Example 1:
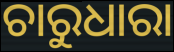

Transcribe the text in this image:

ଚାରୁଧାରା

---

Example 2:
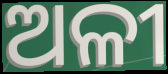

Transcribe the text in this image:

ଅଳୀ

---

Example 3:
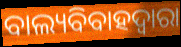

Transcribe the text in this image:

ବାଲ୍ୟବିବାହଦ୍ୱାରା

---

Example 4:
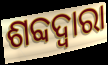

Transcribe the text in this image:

ଶବ୍ଦଦ୍ୱାରା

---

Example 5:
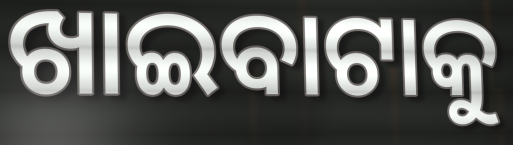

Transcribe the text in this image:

ଖାଇବାଟାକୁ